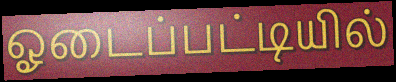
ஓடைப்பட்டியில்